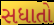
સધાતો